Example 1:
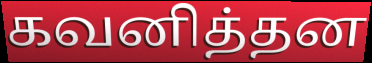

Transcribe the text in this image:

கவனித்தன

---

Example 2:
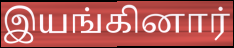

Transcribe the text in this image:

இயங்கினார்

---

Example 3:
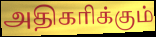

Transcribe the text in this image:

அதிகரிக்கும்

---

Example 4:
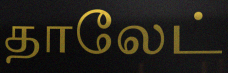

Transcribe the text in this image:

தாலேட்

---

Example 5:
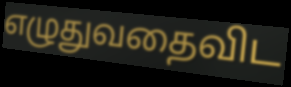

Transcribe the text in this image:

எழுதுவதைவிட